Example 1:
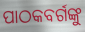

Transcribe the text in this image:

ପାଠକବର୍ଗଙ୍କୁ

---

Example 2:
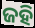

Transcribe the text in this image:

ଜହି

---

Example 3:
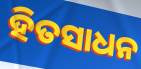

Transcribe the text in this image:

ହିତସାଧନ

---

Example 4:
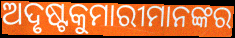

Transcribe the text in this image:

ଅଦୃଷ୍ଟକୁମାରୀମାନଙ୍କର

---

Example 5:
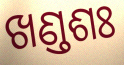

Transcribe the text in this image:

ଖଣ୍ଡଶଃ